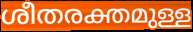
ശീതരക്തമുള്ള